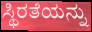
ಸ್ಥಿರತೆಯನ್ನು